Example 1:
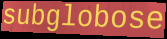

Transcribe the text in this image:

subglobose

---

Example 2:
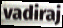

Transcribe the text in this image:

vadiraj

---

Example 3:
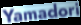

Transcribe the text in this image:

Yamadori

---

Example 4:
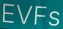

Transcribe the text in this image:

EVFs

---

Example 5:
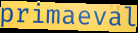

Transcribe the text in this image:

primaeval